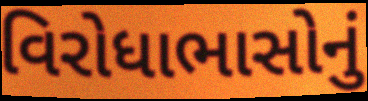
વિરોધાભાસોનું